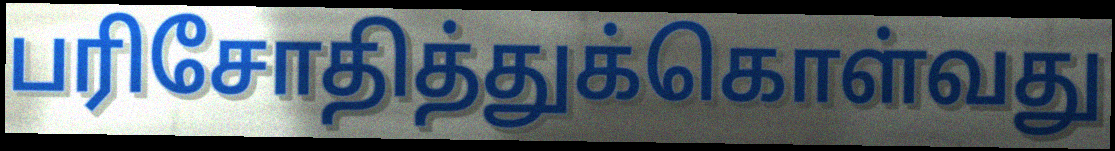
பரிசோதித்துக்கொள்வது